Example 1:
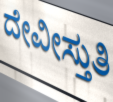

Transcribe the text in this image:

ದೇವೀಸ್ತುತಿ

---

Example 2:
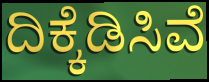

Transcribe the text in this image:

ದಿಕ್ಕೆಡಿಸಿವೆ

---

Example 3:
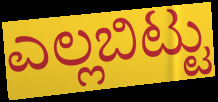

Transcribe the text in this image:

ಎಲ್ಲಬಿಟ್ಟು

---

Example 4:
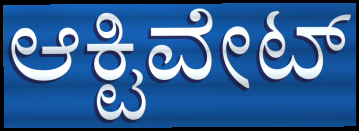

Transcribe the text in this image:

ಆಕ್ಟಿವೇಟ್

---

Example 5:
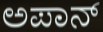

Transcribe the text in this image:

ಅಪಾನ್